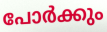
പോർക്കും